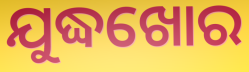
ଯୁଦ୍ଧଖୋର